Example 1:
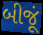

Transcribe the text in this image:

બીજૂં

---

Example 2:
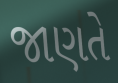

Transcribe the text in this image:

જાણતે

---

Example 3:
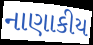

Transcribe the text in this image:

નાણાકીય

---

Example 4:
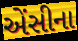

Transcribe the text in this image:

એંસીના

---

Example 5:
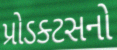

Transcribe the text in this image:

પ્રોડક્ટસનો